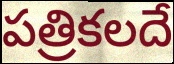
పత్రికలదే